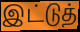
இட்டுத்